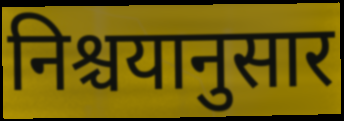
निश्चयानुसार